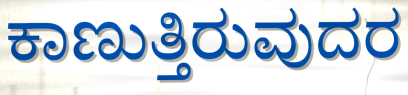
ಕಾಣುತ್ತಿರುವುದರ